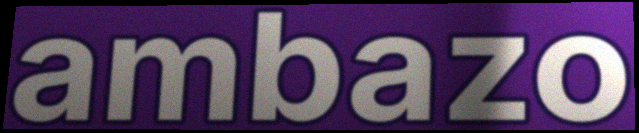
ambazo